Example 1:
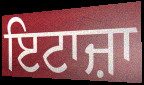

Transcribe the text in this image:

ਇਟਾਜ਼ਾ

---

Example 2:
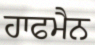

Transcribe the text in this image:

ਹਾਫਮੈਨ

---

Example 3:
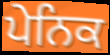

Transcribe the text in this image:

ਪੇਨਿਕ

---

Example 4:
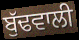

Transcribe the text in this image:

ਬੁੱਢਵਾਲੀ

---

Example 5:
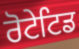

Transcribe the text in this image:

ਰੋਟੇਟਿਡ